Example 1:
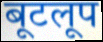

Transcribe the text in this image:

बूटलूप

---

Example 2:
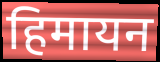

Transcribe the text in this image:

हिमायन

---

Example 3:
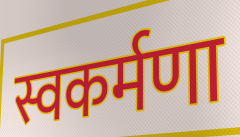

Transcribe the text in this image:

स्वकर्मणा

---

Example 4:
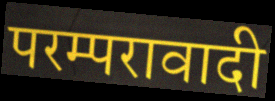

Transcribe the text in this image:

परम्परावादी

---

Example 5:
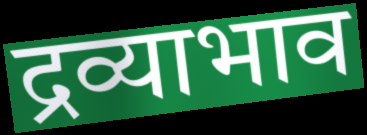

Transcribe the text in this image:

द्रव्याभाव